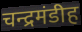
चन्द्रमंडीह